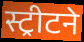
स्ट्रीटने